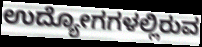
ಉದ್ಯೋಗಗಳಲ್ಲಿರುವ